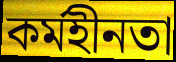
কৰ্মহীনতা